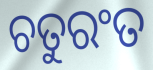
ଚତୁରଂତ